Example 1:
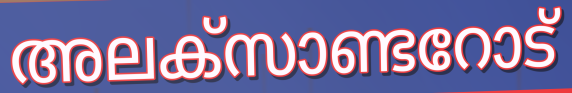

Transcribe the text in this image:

അലക്സാണ്ടറോട്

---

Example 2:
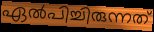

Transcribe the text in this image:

ഏൽപിച്ചിരുന്നത്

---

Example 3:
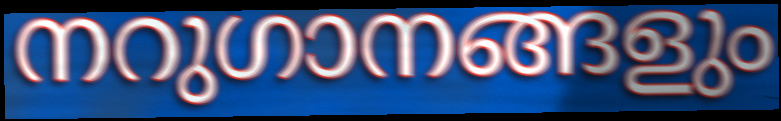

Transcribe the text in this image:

നറുഗാനങ്ങളും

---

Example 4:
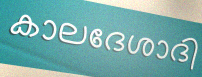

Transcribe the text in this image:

കാലദേശാദി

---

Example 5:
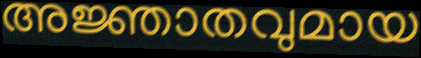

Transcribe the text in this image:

അജ്ഞാതവുമായ